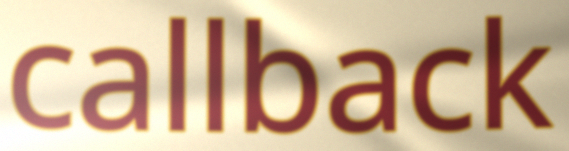
callback